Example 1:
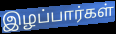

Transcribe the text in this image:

இழப்பார்கள்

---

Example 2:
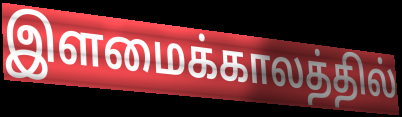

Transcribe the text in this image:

இளமைக்காலத்தில்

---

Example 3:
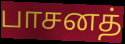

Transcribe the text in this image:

பாசனத்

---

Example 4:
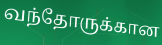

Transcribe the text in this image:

வந்தோருக்கான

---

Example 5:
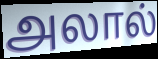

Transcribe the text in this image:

அலால்